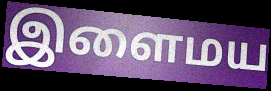
இளைமய